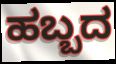
ಹಬ್ಬದ